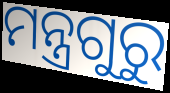
ମନ୍ତ୍ରଗୁରୁ